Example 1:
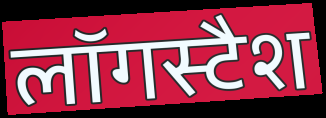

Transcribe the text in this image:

लॉगस्टैश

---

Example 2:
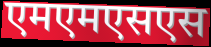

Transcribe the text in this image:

एमएमएसएस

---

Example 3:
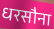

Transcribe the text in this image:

धरसौना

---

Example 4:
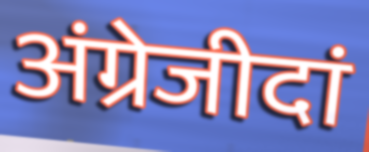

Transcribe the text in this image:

अंग्रेजीदां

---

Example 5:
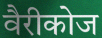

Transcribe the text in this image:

वैरीकोज